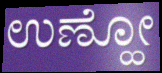
ಉಣ್ಹೋ